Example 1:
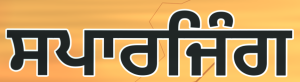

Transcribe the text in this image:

ਸਪਾਰਜਿੰਗ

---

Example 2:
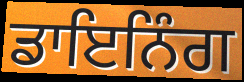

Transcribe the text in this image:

ਡਾਇਨਿੰਗ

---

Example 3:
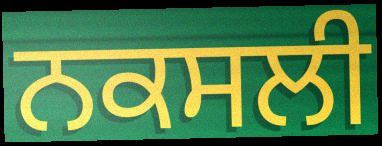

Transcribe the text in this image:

ਨਕਸਲੀ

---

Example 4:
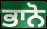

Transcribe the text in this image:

ਭਾਨੋ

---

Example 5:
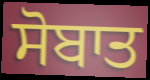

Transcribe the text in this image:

ਸੋਬਾਤ